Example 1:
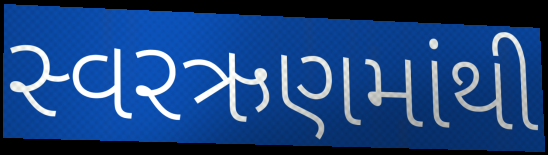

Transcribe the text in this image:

સ્વરઋણમાંથી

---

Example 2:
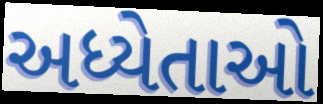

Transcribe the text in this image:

અધ્યેતાઓ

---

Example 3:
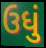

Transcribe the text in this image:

ઉધું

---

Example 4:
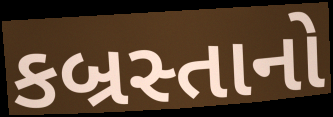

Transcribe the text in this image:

કબ્રસ્તાનો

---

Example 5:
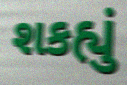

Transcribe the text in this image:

શકહ્યું